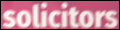
solicitors